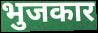
भुजकार